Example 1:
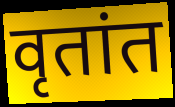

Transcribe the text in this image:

वृतांत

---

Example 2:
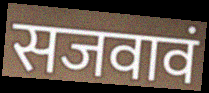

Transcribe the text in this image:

सजवावं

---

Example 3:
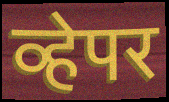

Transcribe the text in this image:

व्हेपर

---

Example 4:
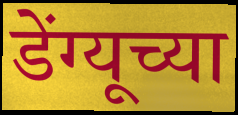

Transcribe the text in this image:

डेंग्यूच्या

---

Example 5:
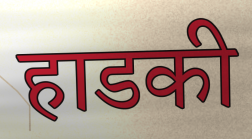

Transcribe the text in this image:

हाडकी